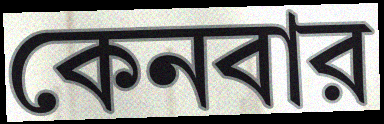
কেনবার